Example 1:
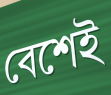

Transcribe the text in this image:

বেশেই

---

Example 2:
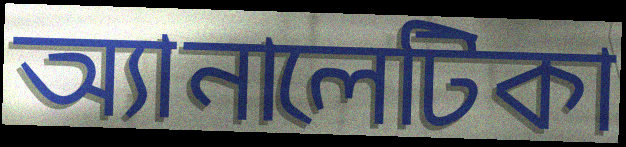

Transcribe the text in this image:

অ্যানালেটিকা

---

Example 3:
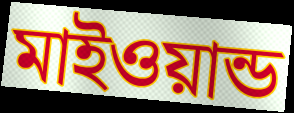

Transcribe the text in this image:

মাইওয়ান্ড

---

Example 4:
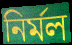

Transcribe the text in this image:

নির্মল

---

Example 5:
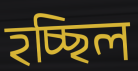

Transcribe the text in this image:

হচ্ছিল